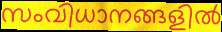
സംവിധാനങ്ങളിൽ